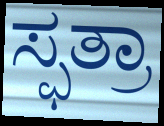
ಸ್ಫತ್ರಾ